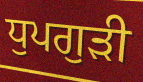
ਧੁਪਗੁੜੀ